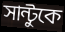
সান্টুকে